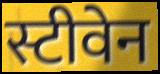
स्टीवेन